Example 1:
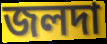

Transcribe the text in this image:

জলদা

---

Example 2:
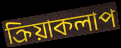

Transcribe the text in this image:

ক্রিয়াকলাপ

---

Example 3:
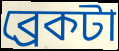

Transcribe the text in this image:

ব্রেকটা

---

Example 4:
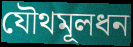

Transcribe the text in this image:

যৌথমূলধন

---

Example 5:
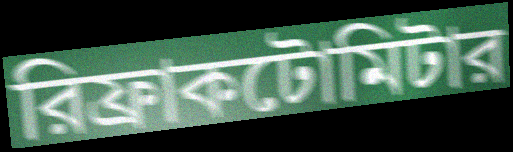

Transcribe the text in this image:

রিফ্রাকটোমিটার